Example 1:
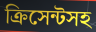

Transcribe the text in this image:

ক্রিসেন্টসহ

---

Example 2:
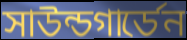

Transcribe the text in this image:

সাউন্ডগার্ডেন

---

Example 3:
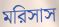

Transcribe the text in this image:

মরিসাস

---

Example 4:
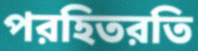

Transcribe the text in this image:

পরহিতরতি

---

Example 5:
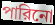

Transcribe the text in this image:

পারিনো